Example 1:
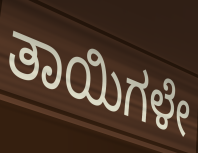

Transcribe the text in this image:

ತಾಯಿಗಳೇ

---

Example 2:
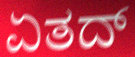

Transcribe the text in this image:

ಏತದ್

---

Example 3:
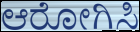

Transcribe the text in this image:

ಆರೋಗಿಸಿ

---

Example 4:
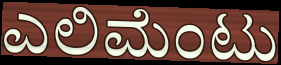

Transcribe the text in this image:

ಎಲಿಮೆಂಟು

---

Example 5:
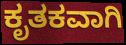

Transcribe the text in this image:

ಕೃತಕವಾಗಿ